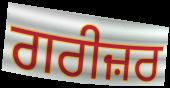
ਗਰੀਜ਼ਰ